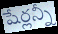
షేర్లన్నీ